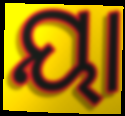
ୟା